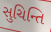
સુચિન્તિ